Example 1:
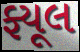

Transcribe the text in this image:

ફ્યૂલ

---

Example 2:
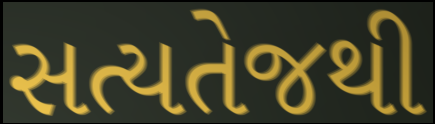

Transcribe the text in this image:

સત્યતેજથી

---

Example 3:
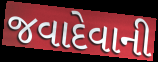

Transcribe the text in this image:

જવાદેવાની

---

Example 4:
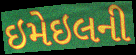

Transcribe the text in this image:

ઇમેઇલની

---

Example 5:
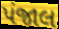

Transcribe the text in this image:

પંજાલ